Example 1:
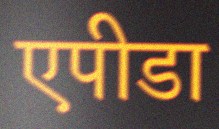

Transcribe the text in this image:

एपीडा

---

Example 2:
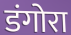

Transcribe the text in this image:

डंगोरा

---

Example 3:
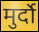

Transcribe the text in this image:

मुर्दो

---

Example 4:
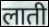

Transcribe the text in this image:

लाती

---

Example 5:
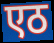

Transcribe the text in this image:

एठ